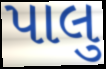
પાલુ